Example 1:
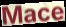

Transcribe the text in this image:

Mace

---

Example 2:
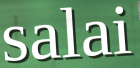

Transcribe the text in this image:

salai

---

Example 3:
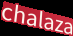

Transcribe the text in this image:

chalaza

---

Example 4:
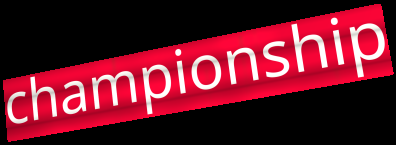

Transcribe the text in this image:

championship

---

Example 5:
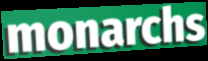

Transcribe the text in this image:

monarchs